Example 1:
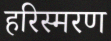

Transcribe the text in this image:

हरिस्मरण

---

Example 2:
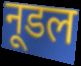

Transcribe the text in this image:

नूडल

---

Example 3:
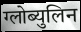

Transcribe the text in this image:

ग्लोब्युलिन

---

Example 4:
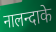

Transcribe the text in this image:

नालन्दाके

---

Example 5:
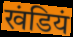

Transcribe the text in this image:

खंडियं